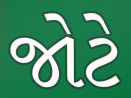
જોટે